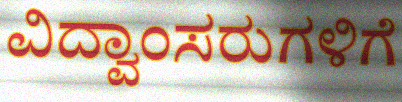
ವಿದ್ವಾಂಸರುಗಳಿಗೆ